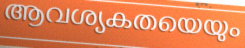
ആവശ്യകതയെയും